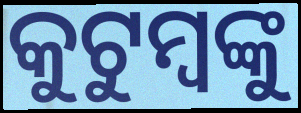
କୁଟୁମ୍ବଙ୍କୁ